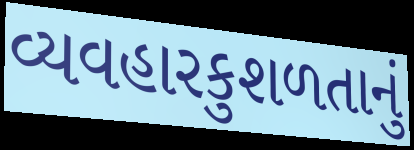
વ્યવહારકુશળતાનું